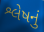
શ્લેષનું